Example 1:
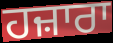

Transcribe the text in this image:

ਹਜ਼ਾਰਾ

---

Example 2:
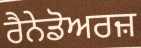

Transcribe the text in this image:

ਰੈਨੇਡੋਅਰਜ਼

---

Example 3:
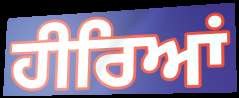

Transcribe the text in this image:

ਹੀਰਿਆਂ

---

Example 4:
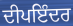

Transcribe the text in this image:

ਦੀਪਇੰਦਰ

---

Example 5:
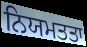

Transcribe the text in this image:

ਨਿਯਮਤਤਾ